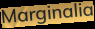
Marginalia